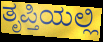
ತೃಪ್ತಿಯಲ್ಲಿ